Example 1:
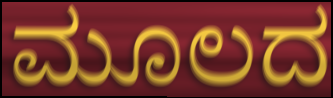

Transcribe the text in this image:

ಮೂಲದ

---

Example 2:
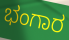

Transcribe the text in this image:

ಭಂಗಾರ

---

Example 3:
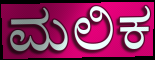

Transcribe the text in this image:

ಮಲಿಕ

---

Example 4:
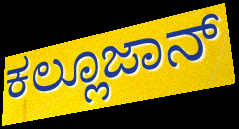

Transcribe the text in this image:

ಕಲ್ಲೂಜಾನ್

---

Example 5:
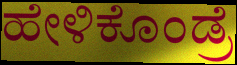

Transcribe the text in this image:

ಹೇಳಿಕೊಂಡ್ರೆ